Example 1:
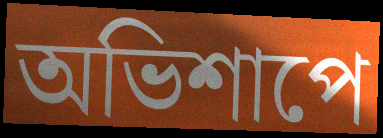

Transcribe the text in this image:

অভিশাপে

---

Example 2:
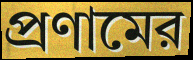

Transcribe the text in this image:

প্রণামের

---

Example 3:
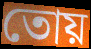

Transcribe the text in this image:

তোয়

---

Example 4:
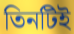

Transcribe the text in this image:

তিনটিই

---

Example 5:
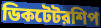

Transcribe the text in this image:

ডিকটেটরশিপ